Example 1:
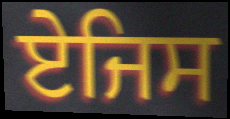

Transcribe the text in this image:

ਏਜਿਸ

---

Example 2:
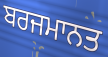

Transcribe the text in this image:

ਬਰਜਮਾਨਤ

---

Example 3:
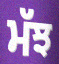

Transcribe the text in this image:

ਮੱਝ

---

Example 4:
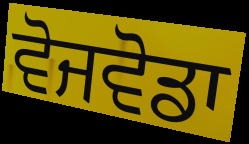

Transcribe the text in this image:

ਵੋਜਵੋਡਾ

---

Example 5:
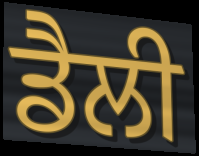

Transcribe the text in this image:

ਡੈਲੀ